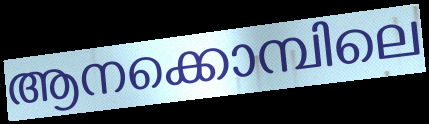
ആനക്കൊമ്പിലെ